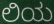
ಲಿಯ